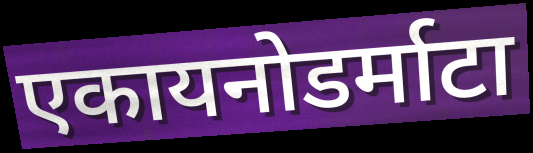
एकायनोडर्माटा